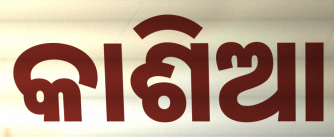
କାଶିଆ